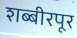
शब्बीरपूर